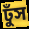
ঢুঁস